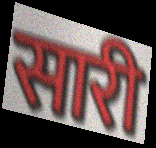
सारी